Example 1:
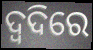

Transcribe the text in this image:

ଦ୍ଵଦିରେ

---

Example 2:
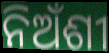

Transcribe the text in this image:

ନିଅଁଶୀ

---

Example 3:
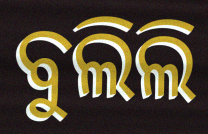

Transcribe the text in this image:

ବୁଲିଲି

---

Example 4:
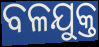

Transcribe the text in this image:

ବଳଯୁକ୍ତ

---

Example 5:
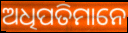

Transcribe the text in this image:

ଅଧିପତିମାନେ